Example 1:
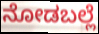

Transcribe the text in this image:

ನೋಡಬಲ್ಲೆ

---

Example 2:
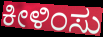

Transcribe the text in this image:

ಕೀಳಿಂಸು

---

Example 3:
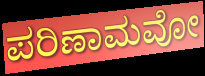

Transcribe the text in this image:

ಪರಿಣಾಮವೋ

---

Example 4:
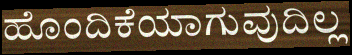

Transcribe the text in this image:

ಹೊಂದಿಕೆಯಾಗುವುದಿಲ್ಲ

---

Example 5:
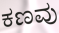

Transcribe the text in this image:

ಕಣವು